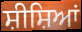
ਸ਼ੀਸ਼ਿਆਂ